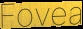
Fovea